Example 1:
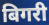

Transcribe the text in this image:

बिगरी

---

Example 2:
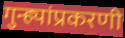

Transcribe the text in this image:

गुन्ह्यांप्रकरणी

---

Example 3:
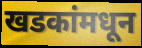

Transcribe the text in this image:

खडकांमधून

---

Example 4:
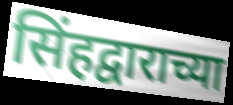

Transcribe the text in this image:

सिंहद्वाराच्या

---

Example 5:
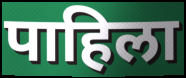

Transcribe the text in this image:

पाहिला